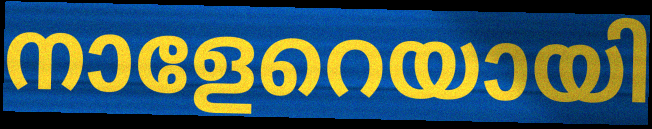
നാളേറെയായി